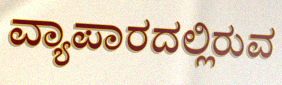
ವ್ಯಾಪಾರದಲ್ಲಿರುವ